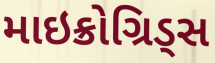
માઇક્રોગ્રિડ્સ